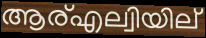
ആര്എല്വിയില്